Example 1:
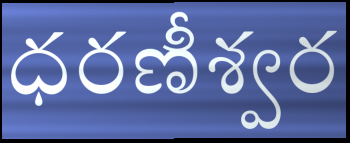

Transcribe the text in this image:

ధరణీశ్వర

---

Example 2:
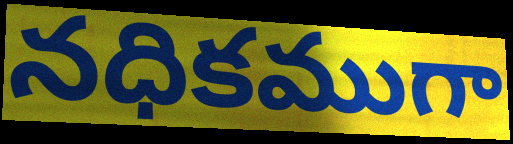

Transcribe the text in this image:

నధికముగా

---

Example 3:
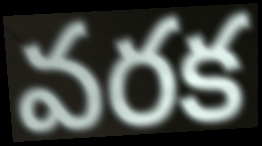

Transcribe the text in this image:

వరక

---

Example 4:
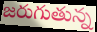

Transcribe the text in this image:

జరుగుతున్న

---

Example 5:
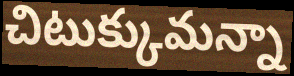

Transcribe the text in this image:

చిటుక్కుమన్నా